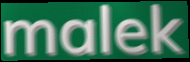
malek